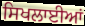
ਸਿਖਲਾਈਆਂ